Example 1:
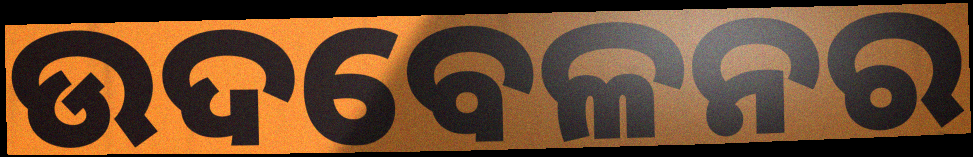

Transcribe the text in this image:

ଉଦବେଳନର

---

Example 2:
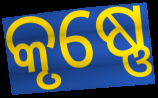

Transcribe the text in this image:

କୃଷ୍ଣେ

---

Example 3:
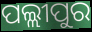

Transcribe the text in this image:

ପଲ୍ଲୀପୁର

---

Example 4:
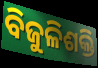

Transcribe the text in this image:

ବିଜୁଳିଶକ୍ତି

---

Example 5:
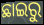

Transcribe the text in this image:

ଛାଇରୁ